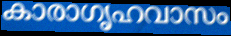
കാരാഗൃഹവാസം